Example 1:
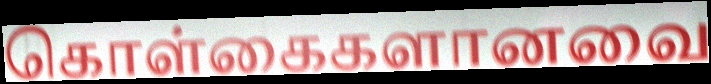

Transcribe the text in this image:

கொள்கைகளானவை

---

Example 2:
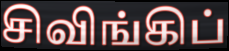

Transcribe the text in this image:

சிவிங்கிப்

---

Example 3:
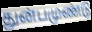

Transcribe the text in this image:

துன்பமுண்டு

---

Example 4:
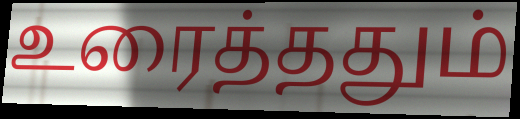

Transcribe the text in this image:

உரைத்ததும்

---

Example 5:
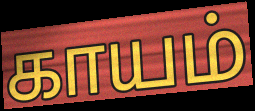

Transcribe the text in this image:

காயம்